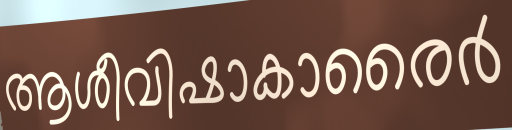
ആശീവിഷാകാരൈർ